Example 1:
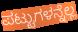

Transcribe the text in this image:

ಪಟ್ಟುಗಳನ್ನೆಲ್ಲ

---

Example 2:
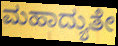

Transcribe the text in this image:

ಮಹಾದ್ಯುತೇ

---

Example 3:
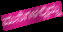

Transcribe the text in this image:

ಮನೆಗಳಲ್ಲಿದ್ದು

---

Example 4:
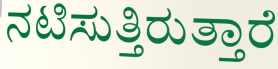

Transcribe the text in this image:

ನಟಿಸುತ್ತಿರುತ್ತಾರೆ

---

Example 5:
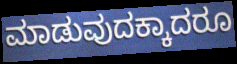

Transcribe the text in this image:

ಮಾಡುವುದಕ್ಕಾದರೂ